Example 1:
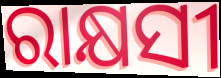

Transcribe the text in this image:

ରାକ୍ଷସୀ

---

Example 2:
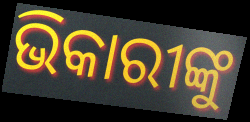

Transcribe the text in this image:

ଭିକାରୀଙ୍କୁ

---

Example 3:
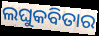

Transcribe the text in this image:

ଲଘୁକବିତାର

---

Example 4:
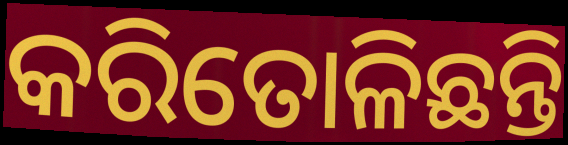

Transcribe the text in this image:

କରିତୋଳିଛନ୍ତି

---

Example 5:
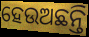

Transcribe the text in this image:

ହେଉଅଛନ୍ତି